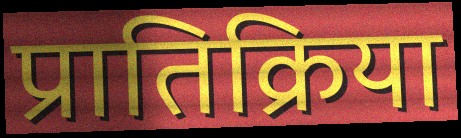
प्रातिक्रिया